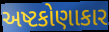
અષ્ટકોણાકાર